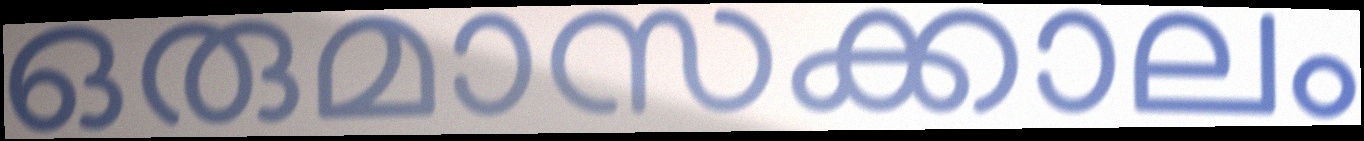
ഒരുമാസക്കാലം